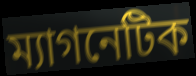
ম্যাগনেটিক